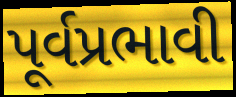
પૂર્વપ્રભાવી